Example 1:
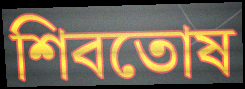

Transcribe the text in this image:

শিবতোষ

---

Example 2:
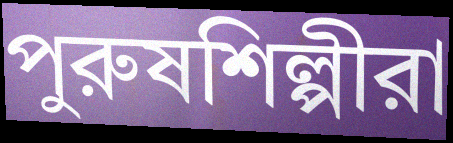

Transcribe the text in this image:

পুরুষশিল্পীরা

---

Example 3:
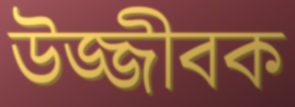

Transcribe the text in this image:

উজ্জীবক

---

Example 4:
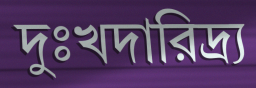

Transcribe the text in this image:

দুঃখদারিদ্র্য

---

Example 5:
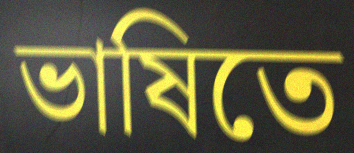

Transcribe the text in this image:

ভাষিতে